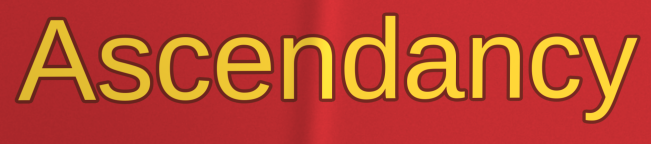
Ascendancy